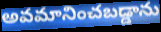
అవమానించబడ్డాను